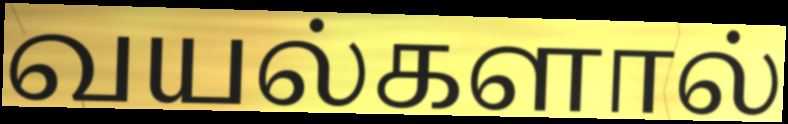
வயல்களால்